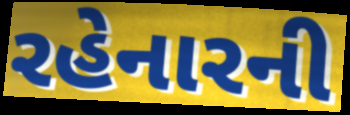
રહેનારની